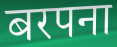
बरपना